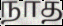
நாத